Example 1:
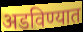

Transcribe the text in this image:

अडविण्यात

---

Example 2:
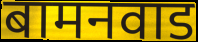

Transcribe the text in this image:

बामनवाड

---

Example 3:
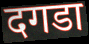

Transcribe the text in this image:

दगडा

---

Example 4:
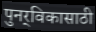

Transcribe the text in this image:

पुनर्विकासाठी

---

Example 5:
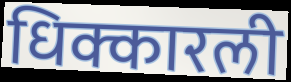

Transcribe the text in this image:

धिक्कारली